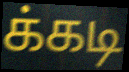
க்கடி